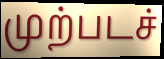
முற்படச்